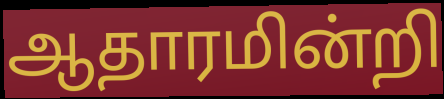
ஆதாரமின்றி